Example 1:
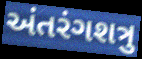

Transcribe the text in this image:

અંતરંગશત્રુ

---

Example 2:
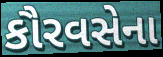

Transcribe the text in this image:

કૌરવસેના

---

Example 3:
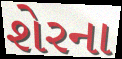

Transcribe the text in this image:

શેરના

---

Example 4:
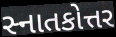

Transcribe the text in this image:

સ્નાતકોત્તર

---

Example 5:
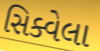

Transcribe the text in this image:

સિક્વેલા